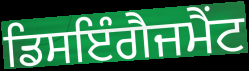
ਡਿਸਇੰਗੈਜਮੈਂਟ